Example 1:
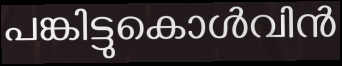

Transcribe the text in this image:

പങ്കിട്ടുകൊൾവിൻ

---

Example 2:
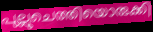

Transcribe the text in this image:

പുല്ലുചെത്തിയൊരുക്കി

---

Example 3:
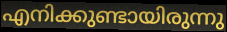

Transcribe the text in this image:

എനിക്കുണ്ടായിരുന്നു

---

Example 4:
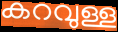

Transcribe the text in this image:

കറവുള്ള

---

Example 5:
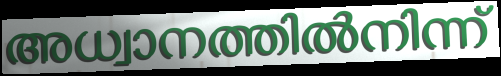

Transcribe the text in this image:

അധ്വാനത്തിൽനിന്ന്